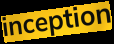
inception